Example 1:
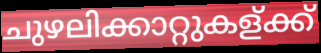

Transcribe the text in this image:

ചുഴലിക്കാറ്റുകള്ക്ക്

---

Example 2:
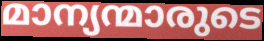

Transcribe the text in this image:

മാന്യന്മാരുടെ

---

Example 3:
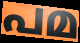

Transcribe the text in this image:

പമ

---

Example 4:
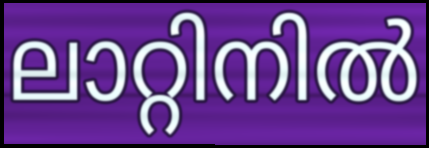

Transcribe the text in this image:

ലാറ്റിനിൽ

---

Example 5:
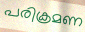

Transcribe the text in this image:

പരിക്രമണ